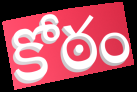
కోఠం